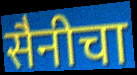
सैनीचा